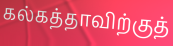
கல்கத்தாவிற்குத்